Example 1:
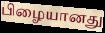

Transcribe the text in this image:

பிழையானது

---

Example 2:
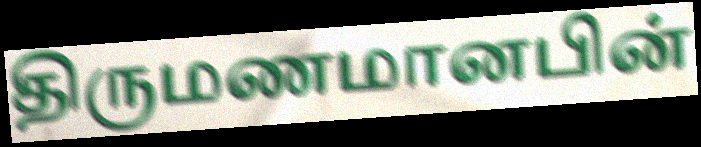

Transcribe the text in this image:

திருமணமானபின்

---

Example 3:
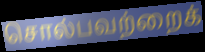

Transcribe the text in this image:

சொல்பவற்றைக்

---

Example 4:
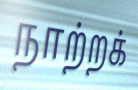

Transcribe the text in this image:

நாற்றக்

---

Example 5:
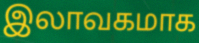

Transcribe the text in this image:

இலாவகமாக